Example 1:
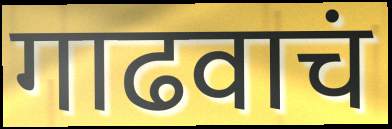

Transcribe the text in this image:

गाढवाचं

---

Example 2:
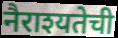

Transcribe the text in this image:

नैराश्यतेची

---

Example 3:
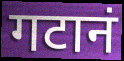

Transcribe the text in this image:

गटानं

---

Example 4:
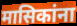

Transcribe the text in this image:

मासिकांना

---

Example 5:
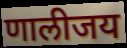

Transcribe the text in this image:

णालीजय